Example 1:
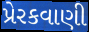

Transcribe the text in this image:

પ્રેરકવાણી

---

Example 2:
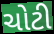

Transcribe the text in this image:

ચોટી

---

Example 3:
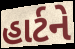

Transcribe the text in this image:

હાર્ટને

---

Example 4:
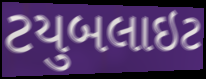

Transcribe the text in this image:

ટયુબલાઇટ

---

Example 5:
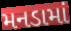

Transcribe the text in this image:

મનડામાં